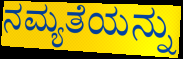
ನಮ್ಯತೆಯನ್ನು